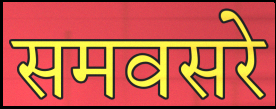
समवसरे